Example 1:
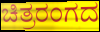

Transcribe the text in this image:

ಚಿತ್ರರಂಗದ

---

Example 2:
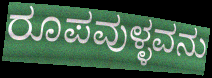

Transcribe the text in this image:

ರೂಪವುಳ್ಳವನು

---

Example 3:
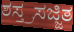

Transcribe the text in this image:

ಶಸ್ತ್ರಸಜ್ಜಿತ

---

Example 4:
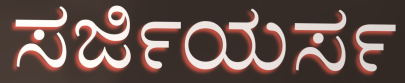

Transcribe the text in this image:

ಸರ್ಜಿಯರ್ಸ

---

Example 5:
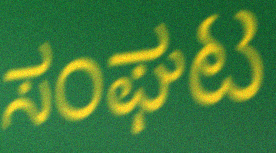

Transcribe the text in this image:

ಸಂಘಟ